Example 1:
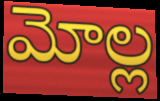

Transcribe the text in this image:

మోల్ల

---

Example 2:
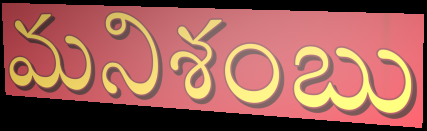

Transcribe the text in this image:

మనిశంబు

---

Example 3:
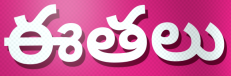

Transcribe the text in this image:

ఈతలు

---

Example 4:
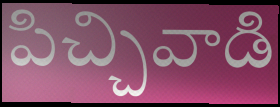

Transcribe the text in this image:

పిచ్చివాడి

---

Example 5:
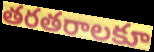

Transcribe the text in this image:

తరతరాలకూ